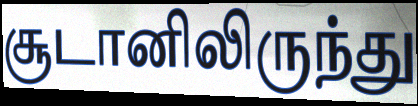
சூடானிலிருந்து